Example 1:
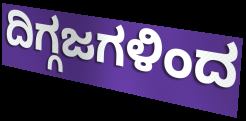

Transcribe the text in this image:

ದಿಗ್ಗಜಗಳಿಂದ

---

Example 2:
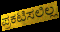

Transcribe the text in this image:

ಪ್ರಕಟಿಸಲಿಲ್ಲ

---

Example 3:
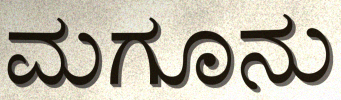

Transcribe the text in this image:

ಮಗೂನು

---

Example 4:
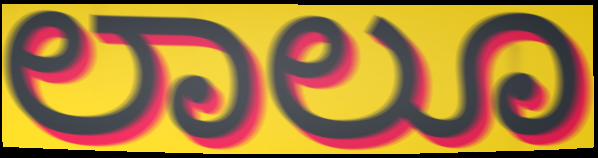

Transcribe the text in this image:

ಲಾಲೂ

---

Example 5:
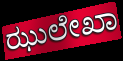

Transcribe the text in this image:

ಝುಲೇಖಾ